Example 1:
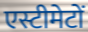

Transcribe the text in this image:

एस्टीमेटों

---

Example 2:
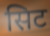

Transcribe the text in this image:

सिट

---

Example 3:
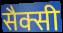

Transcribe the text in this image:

सैक्सी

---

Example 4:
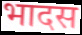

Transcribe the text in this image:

भादस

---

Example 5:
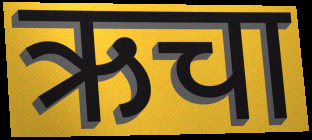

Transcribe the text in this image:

ऋचा